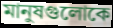
মানুষগুলোকে